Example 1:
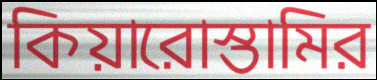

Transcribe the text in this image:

কিয়ারোস্তামির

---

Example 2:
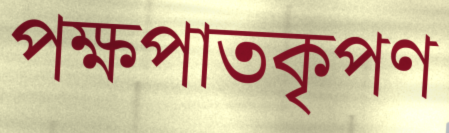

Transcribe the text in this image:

পক্ষপাতকৃপণ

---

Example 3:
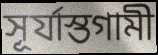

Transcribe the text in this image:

সূর্যাস্তগামী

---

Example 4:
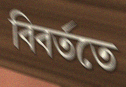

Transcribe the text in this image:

বিবর্ততে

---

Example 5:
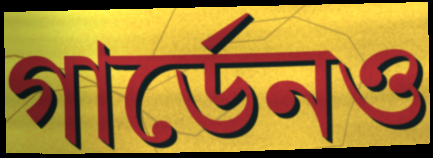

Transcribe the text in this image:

গার্ডেনও